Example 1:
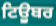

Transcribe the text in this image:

ਟਿਊੁਬਰ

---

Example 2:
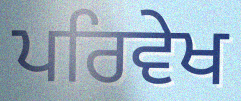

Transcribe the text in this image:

ਪਰਿਵੇਖ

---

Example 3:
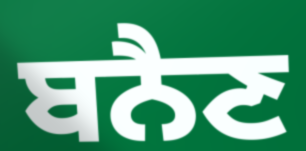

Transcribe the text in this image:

ਬਨੈਣ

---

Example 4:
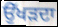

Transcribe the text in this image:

ਉੱਖੜਦਾ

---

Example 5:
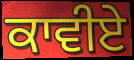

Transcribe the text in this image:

ਕਾਵੀਏ